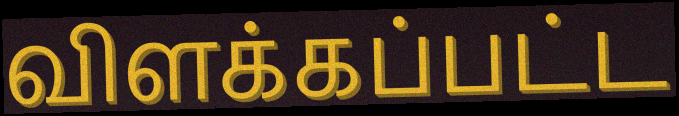
விளக்கப்பட்ட